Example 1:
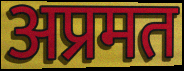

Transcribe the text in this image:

अप्रमत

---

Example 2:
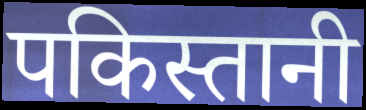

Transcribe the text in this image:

पकिस्तानी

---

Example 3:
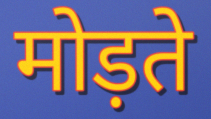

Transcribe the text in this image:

मोड़ते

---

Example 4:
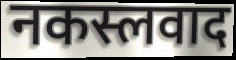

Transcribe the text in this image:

नकस्लवाद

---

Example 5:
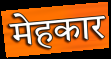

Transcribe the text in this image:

मेहकार